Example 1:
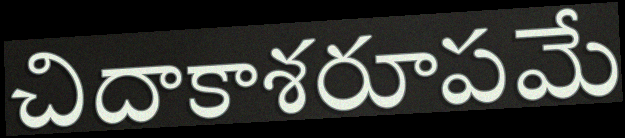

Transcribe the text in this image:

చిదాకాశరూపమే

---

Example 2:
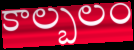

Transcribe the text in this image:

కాల్బలం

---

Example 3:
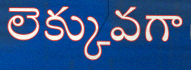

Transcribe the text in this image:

లెక్కువగా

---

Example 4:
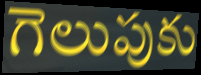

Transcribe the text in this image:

గెలుపుకు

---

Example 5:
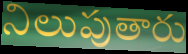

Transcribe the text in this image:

నిలుపుతారు